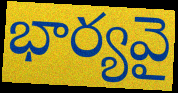
భార్యవై